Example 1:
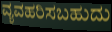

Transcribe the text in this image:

ವ್ಯವಹರಿಸಬಹುದು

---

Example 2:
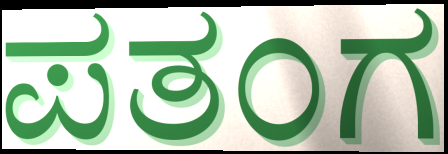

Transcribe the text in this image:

ಪತಂಗ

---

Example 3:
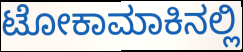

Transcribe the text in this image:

ಟೋಕಾಮಾಕಿನಲ್ಲಿ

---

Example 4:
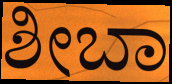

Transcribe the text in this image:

ಶೀಬಾ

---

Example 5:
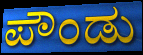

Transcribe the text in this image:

ಪೌಂಡು